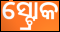
ସ୍ଟ୍ରୋକ